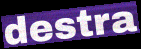
destra